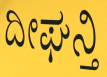
ದೀಘನ್ತಿ